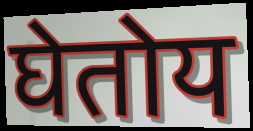
घेतोय